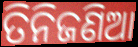
ତିନିଜଣିଆ